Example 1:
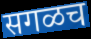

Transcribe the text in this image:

सगळच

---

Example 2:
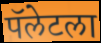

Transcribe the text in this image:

पॅलेटला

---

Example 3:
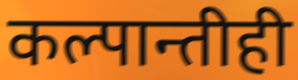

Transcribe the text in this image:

कल्पान्तीही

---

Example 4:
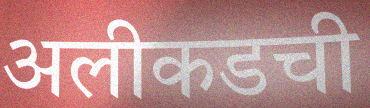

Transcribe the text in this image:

अलीकडची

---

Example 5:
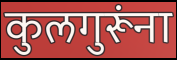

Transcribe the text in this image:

कुलगुरूंना